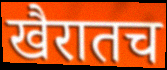
खैरातच